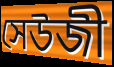
সেউজী